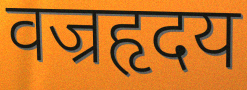
वज्रहृदय